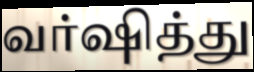
வர்ஷித்து